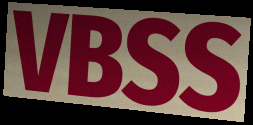
VBSS